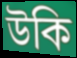
উকি